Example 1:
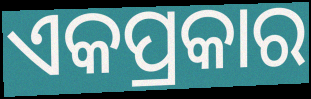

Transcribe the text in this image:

ଏକପ୍ରକାର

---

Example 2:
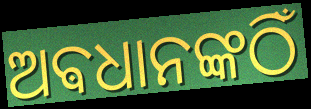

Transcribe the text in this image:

ଅଵଧାନଙ୍କଠିଁ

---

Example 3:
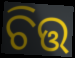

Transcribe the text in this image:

ଚିତ୍ତ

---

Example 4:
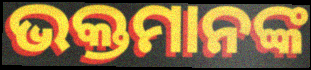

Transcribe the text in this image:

ଭକ୍ତମାନଙ୍କ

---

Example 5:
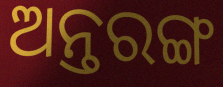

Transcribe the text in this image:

ଅନ୍ତରଙ୍ଗ